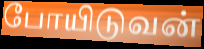
போயிடுவன்